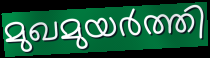
മുഖമുയർത്തി